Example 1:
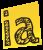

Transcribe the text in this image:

ia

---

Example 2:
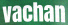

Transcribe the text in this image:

vachan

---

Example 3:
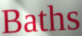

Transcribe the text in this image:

Baths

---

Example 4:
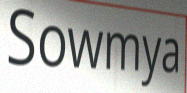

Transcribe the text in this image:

Sowmya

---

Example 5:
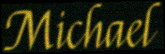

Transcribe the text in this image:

Michael